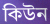
কিউন